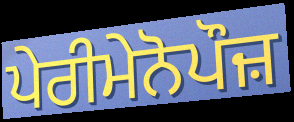
ਪੇਰੀਮੇਨੋਪੌਜ਼